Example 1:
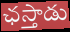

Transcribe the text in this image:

ఛస్తాడు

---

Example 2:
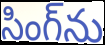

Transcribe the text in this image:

సింగ్‌ను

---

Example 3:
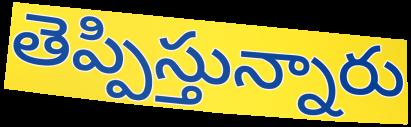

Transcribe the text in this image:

తెప్పిస్తున్నారు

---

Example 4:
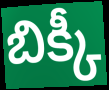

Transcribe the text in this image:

బిక్కీ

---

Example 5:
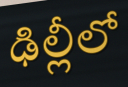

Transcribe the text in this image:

ఢిల్లీలో